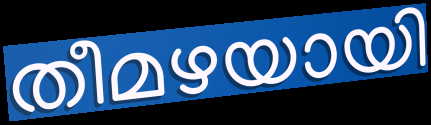
തീമഴയായി